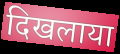
दिखलाया